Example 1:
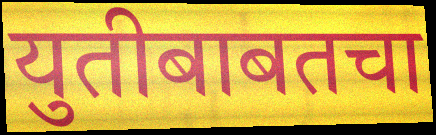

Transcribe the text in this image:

युतीबाबतचा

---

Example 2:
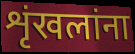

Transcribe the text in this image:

शृंखलांना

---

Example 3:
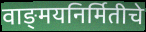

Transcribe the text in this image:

वाङ्मयनिर्मितीचे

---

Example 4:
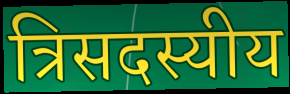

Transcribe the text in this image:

त्रिसदस्यीय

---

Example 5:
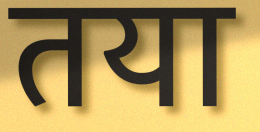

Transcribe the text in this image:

तया